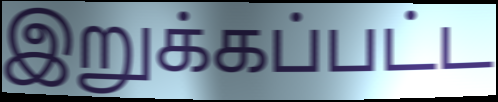
இறுக்கப்பட்ட